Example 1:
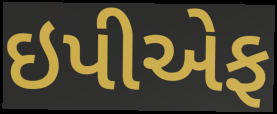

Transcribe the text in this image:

ઇપીએફ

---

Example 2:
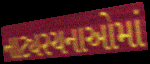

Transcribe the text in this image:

નાટ્યરચનાઓમાં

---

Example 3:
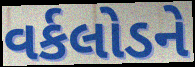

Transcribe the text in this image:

વર્કલોડને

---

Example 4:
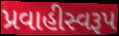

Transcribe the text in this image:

પ્રવાહીસ્વરૂપ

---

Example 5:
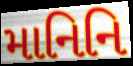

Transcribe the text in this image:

માનિનિ